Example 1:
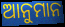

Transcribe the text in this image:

ଆନୁମାନ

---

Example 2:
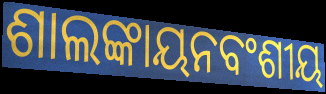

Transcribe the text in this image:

ଶାଲଙ୍କାୟନବଂଶୀୟ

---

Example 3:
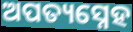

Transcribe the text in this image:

ଅପତ୍ୟସ୍ନେହ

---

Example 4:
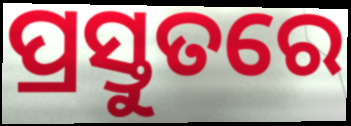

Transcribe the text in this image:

ପ୍ରସ୍ତୁତରେ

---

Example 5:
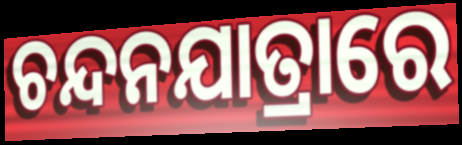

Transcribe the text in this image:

ଚନ୍ଦନଯାତ୍ରାରେ